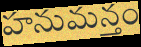
హనుమన్తం